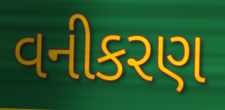
વનીકરણ